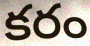
కరం